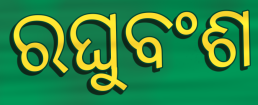
ରଘୁବଂଶ